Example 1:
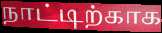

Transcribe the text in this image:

நாட்டிற்காக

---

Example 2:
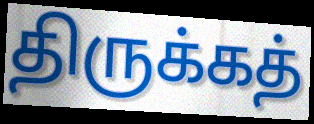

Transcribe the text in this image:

திருக்கத்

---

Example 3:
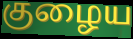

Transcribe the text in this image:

குழைய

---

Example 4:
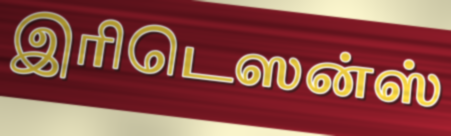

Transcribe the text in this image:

இரிடெஸன்ஸ்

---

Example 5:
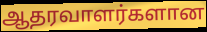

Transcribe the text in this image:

ஆதரவாளர்களான